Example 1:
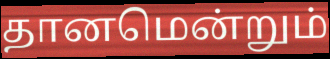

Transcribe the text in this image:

தானமென்றும்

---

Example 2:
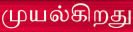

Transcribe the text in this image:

முயல்கிறது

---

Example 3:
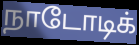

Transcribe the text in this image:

நாடோடிக்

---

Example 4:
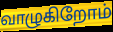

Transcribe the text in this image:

வாழுகிறோம்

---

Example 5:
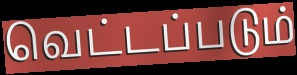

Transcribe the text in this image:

வெட்டப்படும்